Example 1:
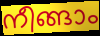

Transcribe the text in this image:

നീങ്ങാം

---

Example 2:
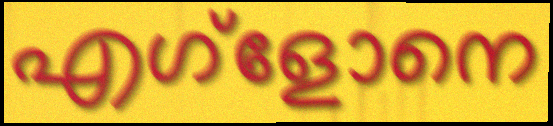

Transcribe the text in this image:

എഗ്ളോനെ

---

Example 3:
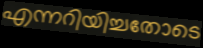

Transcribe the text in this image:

എന്നറിയിച്ചതോടെ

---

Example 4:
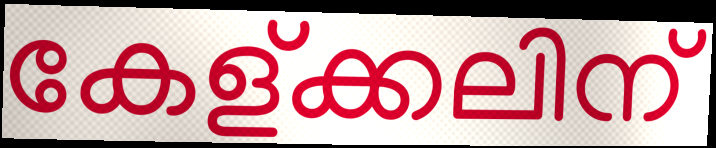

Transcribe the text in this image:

കേള്ക്കലിന്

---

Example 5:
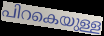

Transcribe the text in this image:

പിറകെയുള്ള